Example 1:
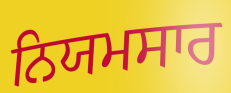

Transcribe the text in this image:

ਨਿਯਮਸਾਰ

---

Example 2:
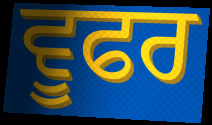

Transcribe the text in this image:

ਵੂਫਰ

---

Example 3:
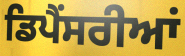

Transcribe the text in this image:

ਡਿਪੈਂਸਰੀਆਂ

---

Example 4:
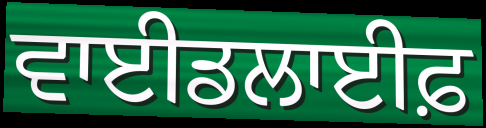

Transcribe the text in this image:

ਵਾਈਡਲਾਈਫ਼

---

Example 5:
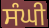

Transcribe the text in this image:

ਸੰਘੀ